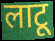
लाटू